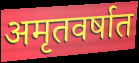
अमृतवर्षात